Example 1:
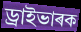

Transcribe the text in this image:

ড্ৰাইভাৰক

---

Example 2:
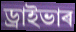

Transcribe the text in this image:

ড্ৰাইভাৰ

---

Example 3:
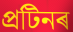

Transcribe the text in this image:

প্ৰটিনৰ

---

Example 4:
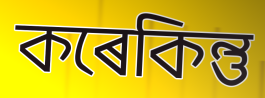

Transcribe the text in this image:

কৰেকিন্তু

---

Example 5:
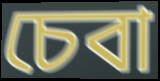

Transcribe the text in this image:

চেবা